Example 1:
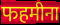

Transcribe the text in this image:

फहमीना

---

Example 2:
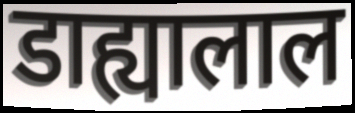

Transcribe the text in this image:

डाह्यालाल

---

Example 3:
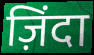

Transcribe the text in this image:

ज़िंदा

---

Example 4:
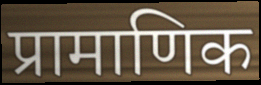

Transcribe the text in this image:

प्रामाणिक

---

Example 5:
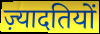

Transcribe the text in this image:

ज़्यादतियों